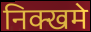
निक्खमे